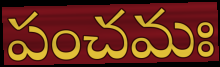
పంచమః